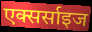
एक्सर्साइज